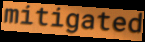
mitigated